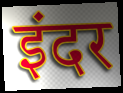
इंदर